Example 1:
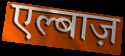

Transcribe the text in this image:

एल्बाज़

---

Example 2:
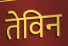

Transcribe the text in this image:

तेविन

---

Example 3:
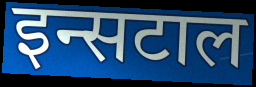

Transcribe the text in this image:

इन्सटाल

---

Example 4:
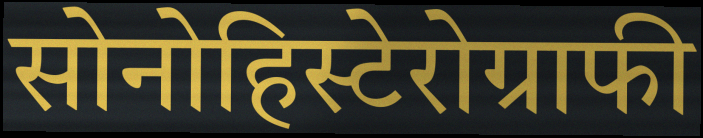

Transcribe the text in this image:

सोनोहिस्टेरोग्राफी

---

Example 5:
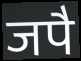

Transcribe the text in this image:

जपै